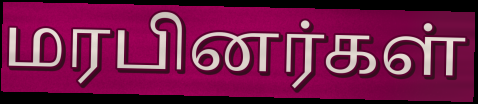
மரபினர்கள்